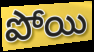
పోయి